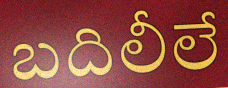
బదిలీలే